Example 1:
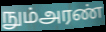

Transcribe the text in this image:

நும்அரண்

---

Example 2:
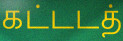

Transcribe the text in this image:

கட்டடத்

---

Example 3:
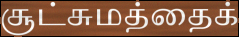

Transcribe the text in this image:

சூட்சுமத்தைக்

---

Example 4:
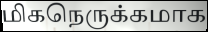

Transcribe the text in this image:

மிகநெருக்கமாக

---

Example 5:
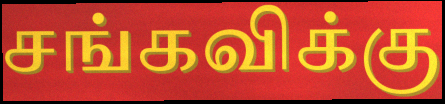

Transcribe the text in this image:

சங்கவிக்கு